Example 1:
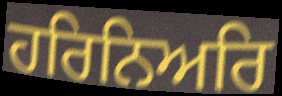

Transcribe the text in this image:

ਹਰਿਨਿਅਰਿ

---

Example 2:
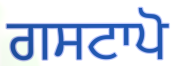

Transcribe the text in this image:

ਗਸਟਾਪੋ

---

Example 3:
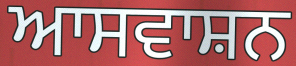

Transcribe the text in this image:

ਆਸਵਾਸ਼ਨ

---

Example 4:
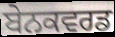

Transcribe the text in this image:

ਬੇਨਕਵਰਡ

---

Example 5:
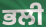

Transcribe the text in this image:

ਭਲੀ